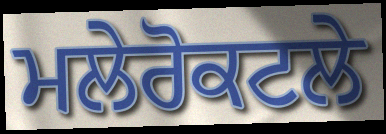
ਮਲੇਰੋਕਟਲੇ